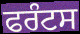
ਫਰੰਟਸ